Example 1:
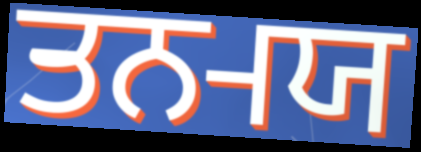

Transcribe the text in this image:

ਤਨ੍ਮਯ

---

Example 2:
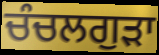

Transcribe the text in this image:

ਚੰਚਲਗੁੜਾ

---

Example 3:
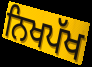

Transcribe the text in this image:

ਨਿਖਪੱਖ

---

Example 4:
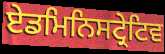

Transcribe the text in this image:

ਏਡਮਿਨਿਸਟ੍ਰੇਟਿਵ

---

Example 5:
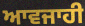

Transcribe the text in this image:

ਆਵਜਾਹੀ